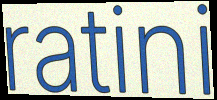
ratini